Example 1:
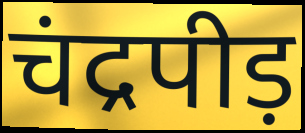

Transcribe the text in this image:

चंद्रपीड़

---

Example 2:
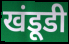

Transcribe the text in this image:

खंडूडी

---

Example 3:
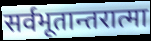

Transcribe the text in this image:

सर्वभूतान्तरात्मा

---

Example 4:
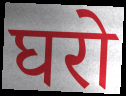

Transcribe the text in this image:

घरो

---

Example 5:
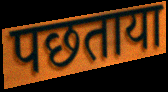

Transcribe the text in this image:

पछताया